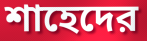
শাহেদের